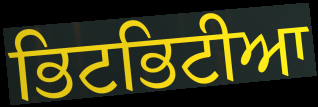
ਭਿਟਭਿਟੀਆ